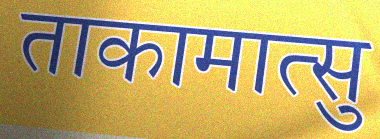
ताकामात्सु